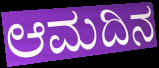
ಆಮದಿನ